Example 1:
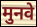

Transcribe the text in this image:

मुनवे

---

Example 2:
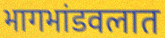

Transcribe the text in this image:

भागभांडवलात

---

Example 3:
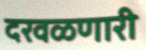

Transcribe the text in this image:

दरवळणारी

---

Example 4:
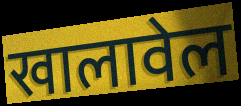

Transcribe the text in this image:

खालावेल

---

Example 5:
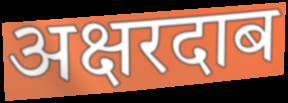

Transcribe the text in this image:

अक्षरदाब